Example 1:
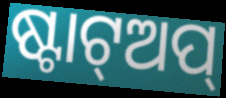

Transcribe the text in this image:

ଷ୍ଟାଟ୍ଅପ୍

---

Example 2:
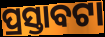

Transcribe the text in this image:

ପ୍ରସ୍ତାବଟା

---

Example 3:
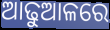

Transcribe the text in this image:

ଆଢୁଆଳରେ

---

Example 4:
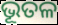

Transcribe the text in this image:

ଭୂତଳ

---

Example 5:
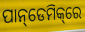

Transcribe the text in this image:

ପାନ୍‌ଡେମିକ୍‌ରେ